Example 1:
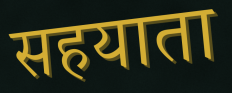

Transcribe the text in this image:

सहयाता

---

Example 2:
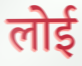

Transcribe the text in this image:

लोई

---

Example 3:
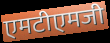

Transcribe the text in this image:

एमटीएमजी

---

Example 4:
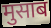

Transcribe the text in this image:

मुसाब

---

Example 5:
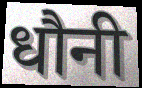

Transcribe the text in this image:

धौनी